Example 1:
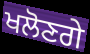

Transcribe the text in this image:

ਖਲੋਣਗੇ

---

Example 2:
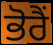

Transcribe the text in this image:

ਭੋਰੈਂ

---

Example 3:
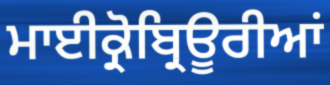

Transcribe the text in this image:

ਮਾਈਕ੍ਰੋਬ੍ਰਿਊਰੀਆਂ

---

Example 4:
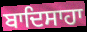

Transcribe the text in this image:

ਬਾਦਿਸਾਹਾ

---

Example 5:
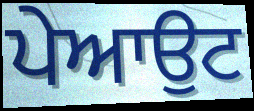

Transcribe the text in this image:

ਪੇਆਉਟ